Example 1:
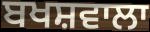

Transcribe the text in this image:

ਬਖਸ਼ਵਾਲਾ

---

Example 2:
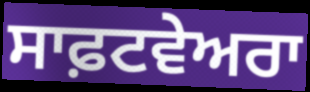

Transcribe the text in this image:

ਸਾਫ਼ਟਵੇਅਰਾ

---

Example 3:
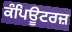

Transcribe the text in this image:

ਕੰਪਿਊਟਰਜ਼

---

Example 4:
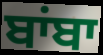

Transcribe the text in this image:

ਬਾਂਬਾ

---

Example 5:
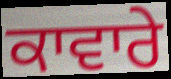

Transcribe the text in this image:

ਕਾਵਾਰੇ